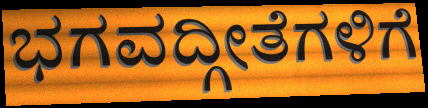
ಭಗವದ್ಗೀತೆಗಳಿಗೆ